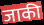
जाकी